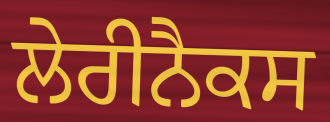
ਲੇਰੀਨੈਕਸ